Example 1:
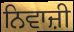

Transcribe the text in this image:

ਨਿਵਾਜ਼ੀ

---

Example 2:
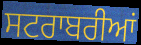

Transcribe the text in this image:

ਸਟਰਾਬਰੀਆਂ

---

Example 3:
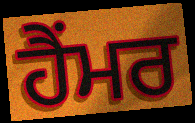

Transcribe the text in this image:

ਹੈਂਮਰ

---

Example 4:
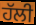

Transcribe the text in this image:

ਹੱਲੀ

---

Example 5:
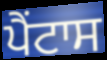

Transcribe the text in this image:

ਪੈਂਟਾਸ